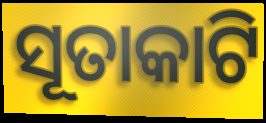
ସୂତାକାଟି